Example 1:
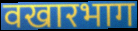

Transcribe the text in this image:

वखारभाग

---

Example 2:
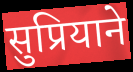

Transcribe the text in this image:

सुप्रियाने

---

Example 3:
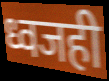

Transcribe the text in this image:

ध्वजही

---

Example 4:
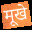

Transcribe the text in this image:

मूखे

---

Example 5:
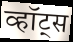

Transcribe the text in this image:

व्हॉट्‌स